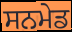
ਸਨਮੇਡ